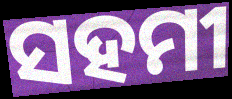
ସହମୀ